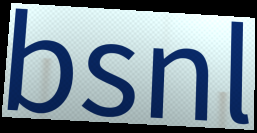
bsnl